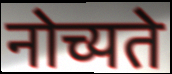
नोच्यते